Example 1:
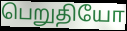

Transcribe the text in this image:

பெறுதியோ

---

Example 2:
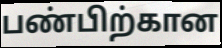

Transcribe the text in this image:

பண்பிற்கான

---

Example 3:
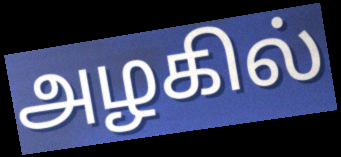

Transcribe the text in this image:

அழகில்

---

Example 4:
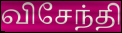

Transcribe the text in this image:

விசேந்தி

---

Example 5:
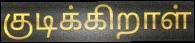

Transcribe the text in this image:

குடிக்கிறாள்